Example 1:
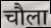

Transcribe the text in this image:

चौला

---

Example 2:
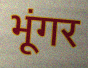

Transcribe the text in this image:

भूंगर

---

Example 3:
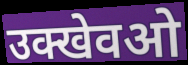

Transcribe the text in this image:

उक्खेवओ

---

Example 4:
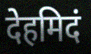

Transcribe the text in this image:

देहमिदं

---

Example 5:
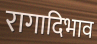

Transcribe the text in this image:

रागादिभाव